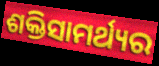
ଶକ୍ତିସାମର୍ଥ୍ୟର